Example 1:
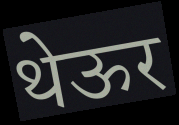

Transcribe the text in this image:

थेऊर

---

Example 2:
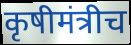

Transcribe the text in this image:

कृषीमंत्रीच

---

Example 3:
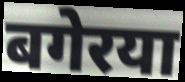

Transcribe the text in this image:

बगेरया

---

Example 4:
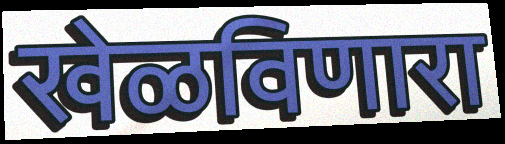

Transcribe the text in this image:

खेळविणारा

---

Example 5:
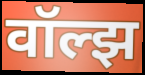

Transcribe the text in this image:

वॉल्झ